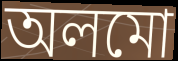
অলমো